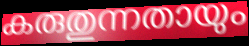
കരുതുന്നതായും